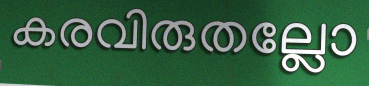
കരവിരുതല്ലോ